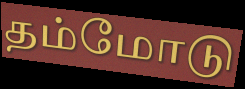
தம்மோடு